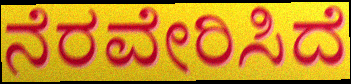
ನೆರವೇರಿಸಿದೆ